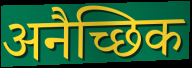
अनैच्छिक